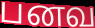
பனவ